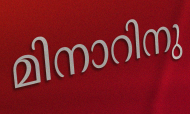
മിനാറിനു